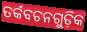
ତର୍କବଚନଗୁଡ଼ିକ